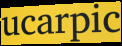
ucarpic